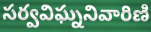
సర్వవిఘ్ననివారిణి